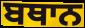
ਬਥਾਨ